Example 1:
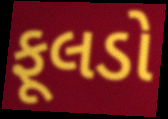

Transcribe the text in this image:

ફૂલડો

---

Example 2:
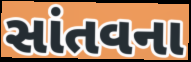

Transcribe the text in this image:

સાંતવના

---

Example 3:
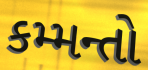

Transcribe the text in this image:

કમ્મન્તો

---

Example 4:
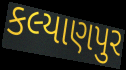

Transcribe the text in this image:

કલ્યાણપુર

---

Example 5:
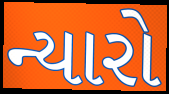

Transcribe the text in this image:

ન્યારો